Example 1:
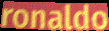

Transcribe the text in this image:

ronaldo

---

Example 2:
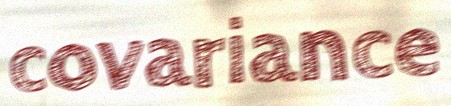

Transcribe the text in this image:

covariance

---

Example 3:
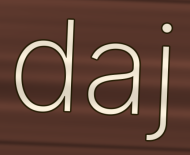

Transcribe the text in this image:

daj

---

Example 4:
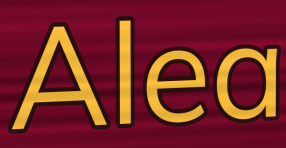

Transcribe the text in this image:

Alea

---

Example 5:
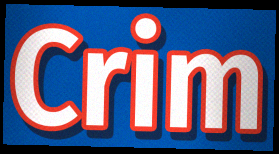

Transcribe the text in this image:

Crim